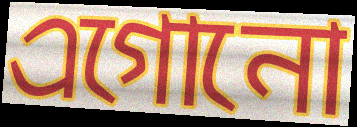
এগোনো